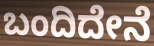
ಬಂದಿದೇನೆ